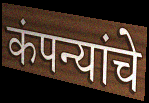
कंपन्यांचे